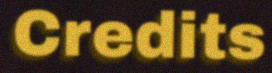
Credits